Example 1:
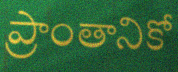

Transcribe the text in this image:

ప్రాంతానికో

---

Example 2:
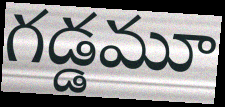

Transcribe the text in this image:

గడ్డమూ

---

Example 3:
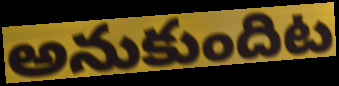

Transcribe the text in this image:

అనుకుందిట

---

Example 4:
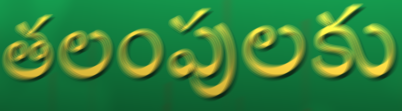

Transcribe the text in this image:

తలంపులకు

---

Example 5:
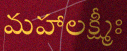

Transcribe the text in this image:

మహాలక్ష్మీః